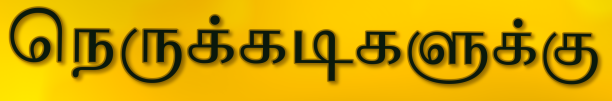
நெருக்கடிகளுக்கு